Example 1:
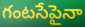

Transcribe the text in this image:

గంటసేపైనా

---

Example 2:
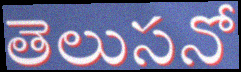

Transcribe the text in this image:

తెలుసనో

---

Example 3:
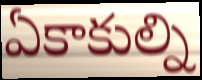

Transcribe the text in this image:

ఏకాకుల్ని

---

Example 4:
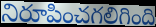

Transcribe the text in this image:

నిరూపించగలిగింది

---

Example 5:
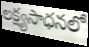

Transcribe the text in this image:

లక్ష్యసాధనలో